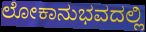
ಲೋಕಾನುಭವದಲ್ಲಿ